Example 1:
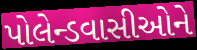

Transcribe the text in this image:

પોલેન્ડવાસીઓને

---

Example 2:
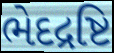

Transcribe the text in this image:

ભેદદ્રષ્ટિ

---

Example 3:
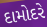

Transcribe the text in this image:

દામોદરે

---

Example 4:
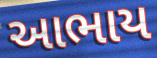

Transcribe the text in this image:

આભાય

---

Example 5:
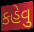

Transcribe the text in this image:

કહેવુ